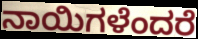
ನಾಯಿಗಳೆಂದರೆ